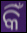
କିଁ